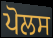
ਪੋਲਸ